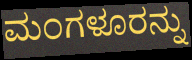
ಮಂಗಳೂರನ್ನು